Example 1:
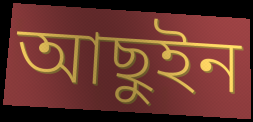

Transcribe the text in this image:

আছুইন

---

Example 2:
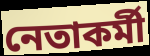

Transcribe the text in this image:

নেতাকর্মী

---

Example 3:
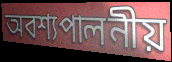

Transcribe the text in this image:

অবশ্যপালনীয়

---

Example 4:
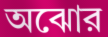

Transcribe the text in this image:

অঝোর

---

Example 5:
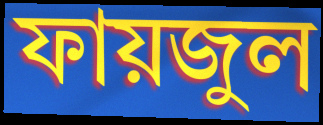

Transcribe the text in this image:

ফায়জুল